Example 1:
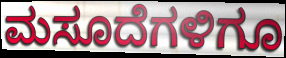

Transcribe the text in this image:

ಮಸೂದೆಗಳಿಗೂ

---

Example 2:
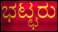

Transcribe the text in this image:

ಭಟ್ಟರು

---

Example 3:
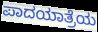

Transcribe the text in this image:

ಪಾದಯಾತ್ರೆಯ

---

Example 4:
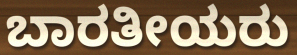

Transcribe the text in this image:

ಬಾರತೀಯರು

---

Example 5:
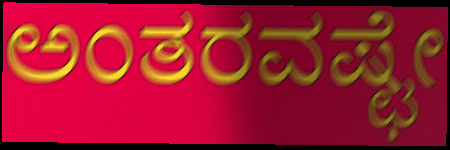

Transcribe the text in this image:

ಅಂತರವಷ್ಟೇ